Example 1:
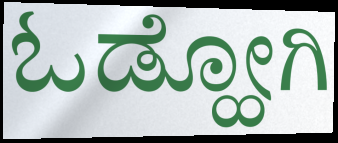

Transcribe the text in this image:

ಓಡ್ಹೋಗಿ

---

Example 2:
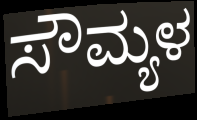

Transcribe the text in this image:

ಸೌಮ್ಯಳ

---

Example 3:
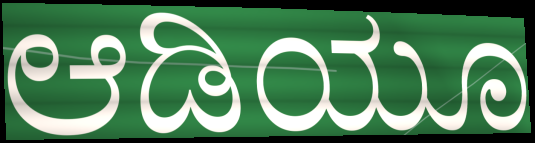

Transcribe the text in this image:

ಆಡಿಯೂ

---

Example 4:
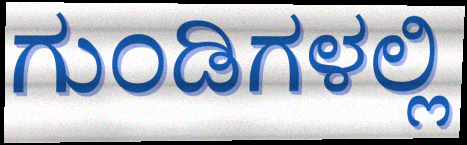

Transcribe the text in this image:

ಗುಂಡಿಗಳಲ್ಲಿ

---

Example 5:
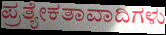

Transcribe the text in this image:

ಪ್ರತ್ಯೇಕತಾವಾದಿಗಳು